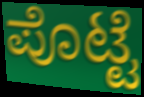
ಪೊಟ್ಟೆ